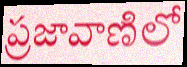
ప్రజావాణిలో